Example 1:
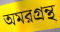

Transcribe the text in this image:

অমরগ্রন্থ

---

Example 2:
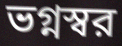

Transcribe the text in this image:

ভগ্নস্বর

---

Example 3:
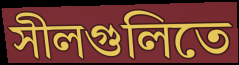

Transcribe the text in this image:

সীলগুলিতে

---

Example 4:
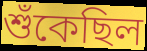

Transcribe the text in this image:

শুঁকেছিল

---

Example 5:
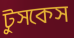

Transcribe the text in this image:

টুসকেস